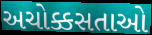
અચોક્કસતાઓ